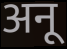
अनू